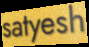
satyesh